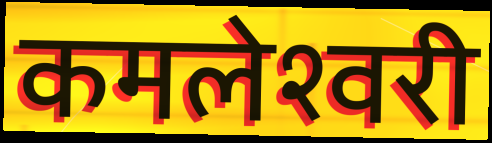
कमलेश्वरी